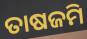
ତାଷଜମି